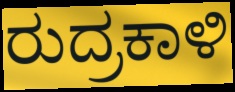
ರುದ್ರಕಾಳಿ